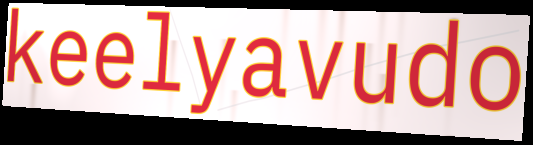
keelyavudo